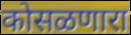
कोसळणारा